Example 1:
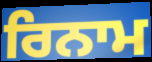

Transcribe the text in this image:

ਰਿਨਾਮ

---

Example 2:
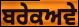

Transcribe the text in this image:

ਬਰੇਕਅਵੇ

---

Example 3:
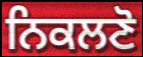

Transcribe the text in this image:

ਨਿਕਲਣੋ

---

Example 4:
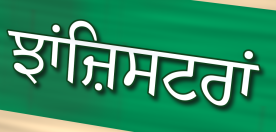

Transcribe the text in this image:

ਝਾਂਜ਼ਿਸਟਰਾਂ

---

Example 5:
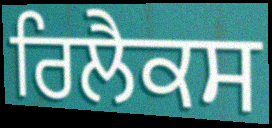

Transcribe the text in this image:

ਰਿਲੈਕਸ